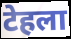
टेहला